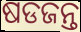
ଷଡଜନ୍ତ